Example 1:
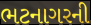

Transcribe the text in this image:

ભટનાગરની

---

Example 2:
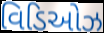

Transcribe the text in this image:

વિડિઓઝ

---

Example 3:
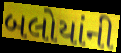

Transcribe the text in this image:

બલોયાંની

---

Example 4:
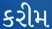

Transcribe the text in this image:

કરીમ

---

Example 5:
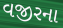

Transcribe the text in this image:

વજીરના